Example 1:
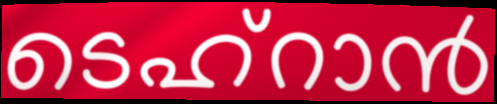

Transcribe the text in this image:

ടെഹ്റാൻ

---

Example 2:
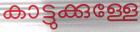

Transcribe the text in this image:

കാട്ടുക്കുള്ളേ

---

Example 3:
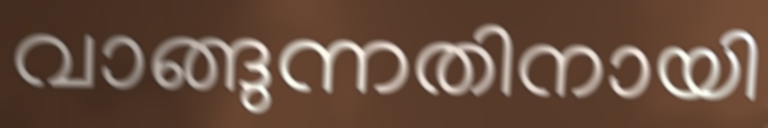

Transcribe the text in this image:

വാങ്ങുന്നതിനായി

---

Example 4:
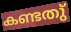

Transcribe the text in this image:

കണ്ടതു്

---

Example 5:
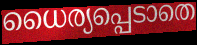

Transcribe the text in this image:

ധൈര്യപ്പെടാതെ